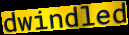
dwindled